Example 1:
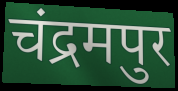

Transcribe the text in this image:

चंद्रमपुर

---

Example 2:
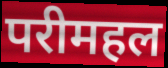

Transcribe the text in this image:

परीमहल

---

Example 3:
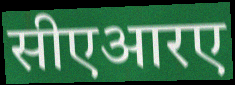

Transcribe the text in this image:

सीएआरए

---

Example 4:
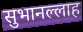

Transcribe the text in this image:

सुभानल्लाह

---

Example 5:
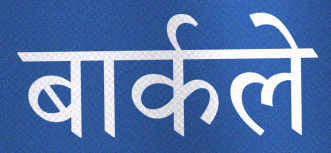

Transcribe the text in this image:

बार्कले